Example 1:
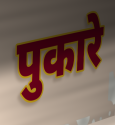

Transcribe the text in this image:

पुकारे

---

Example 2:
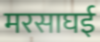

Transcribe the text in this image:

मरसाघई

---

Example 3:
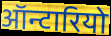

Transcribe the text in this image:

ऑन्टारियो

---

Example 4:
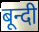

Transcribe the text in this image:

बून्दी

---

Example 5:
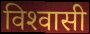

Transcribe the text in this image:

विश्‍वासी